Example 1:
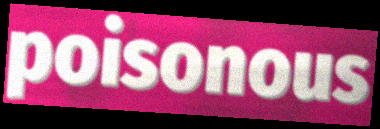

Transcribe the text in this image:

poisonous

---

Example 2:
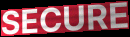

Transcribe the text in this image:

SECURE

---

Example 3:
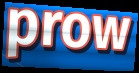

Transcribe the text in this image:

prow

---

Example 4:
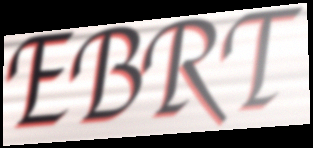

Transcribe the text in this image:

EBRT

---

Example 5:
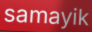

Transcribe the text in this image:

samayik